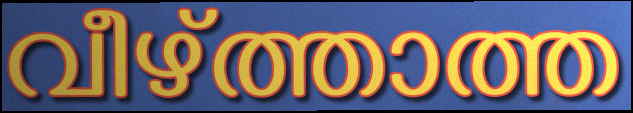
വീഴ്ത്താത്ത